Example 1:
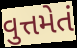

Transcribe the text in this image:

વુત્તમેતં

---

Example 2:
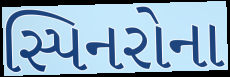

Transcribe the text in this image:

સ્પિનરોના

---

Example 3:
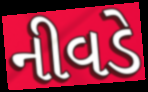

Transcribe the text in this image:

નીવડે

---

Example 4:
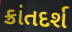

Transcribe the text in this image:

ક્રાંતદર્શ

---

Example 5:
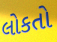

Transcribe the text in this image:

લોકતો